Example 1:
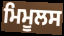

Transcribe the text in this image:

ਮਿਮੂਲਸ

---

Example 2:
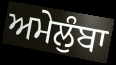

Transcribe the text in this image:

ਅਮੇਲੁੰਬਾ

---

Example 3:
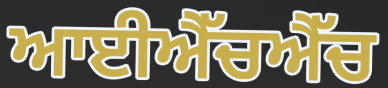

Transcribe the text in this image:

ਆਈਐੱਚਐੱਚ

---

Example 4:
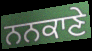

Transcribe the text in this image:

ਨਨਕਾਣੇ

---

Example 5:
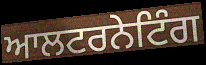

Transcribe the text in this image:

ਆਲਟਰਨੇਟਿੰਗ